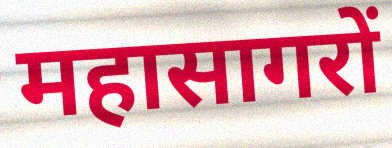
महासागरों